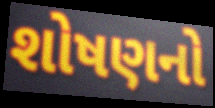
શોષણનો